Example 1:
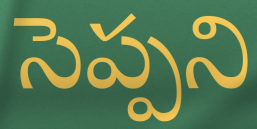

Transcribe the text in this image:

సెప్పని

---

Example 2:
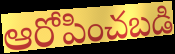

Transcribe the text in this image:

ఆరోపించబడి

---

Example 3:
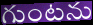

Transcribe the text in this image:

గుంటను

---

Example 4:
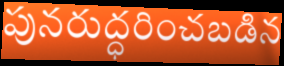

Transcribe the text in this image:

పునరుద్ధరించబడిన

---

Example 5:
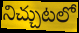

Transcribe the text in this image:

నిచ్చుటలో